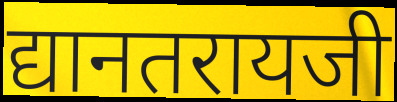
द्यानतरायजी